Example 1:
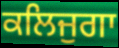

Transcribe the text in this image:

ਕਲਿਜੁਗਾ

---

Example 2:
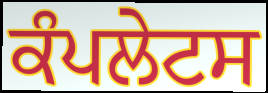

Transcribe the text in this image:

ਕੰਪਲੇਟਸ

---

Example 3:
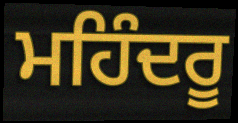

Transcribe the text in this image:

ਮਹਿੰਦਰੂ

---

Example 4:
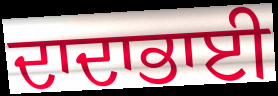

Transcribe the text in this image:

ਦਾਦਾਭਾਈ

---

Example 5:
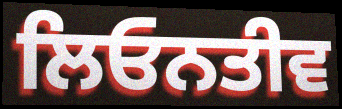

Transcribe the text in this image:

ਲਿਓਨਤੀਵ